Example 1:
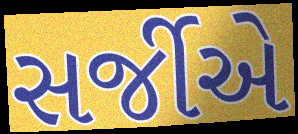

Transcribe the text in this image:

સર્જીએ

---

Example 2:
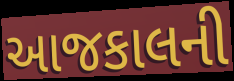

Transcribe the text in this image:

આજકાલની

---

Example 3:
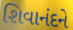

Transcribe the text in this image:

શિવાનંદને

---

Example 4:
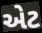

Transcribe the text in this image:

એટ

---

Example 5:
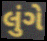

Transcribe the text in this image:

લુંગે